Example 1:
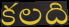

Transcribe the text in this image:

కలది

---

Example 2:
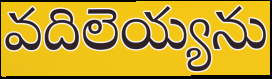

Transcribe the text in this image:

వదిలెయ్యను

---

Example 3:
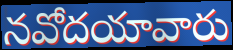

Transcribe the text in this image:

నవోదయావారు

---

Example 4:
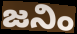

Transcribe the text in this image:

జనిం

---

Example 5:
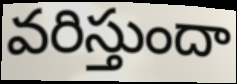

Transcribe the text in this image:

వరిస్తుందా